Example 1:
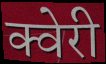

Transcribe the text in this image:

क्वेरी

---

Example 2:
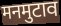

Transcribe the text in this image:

मनमुटाव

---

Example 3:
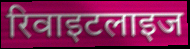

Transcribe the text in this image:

रिवाइटलाइज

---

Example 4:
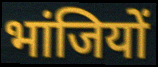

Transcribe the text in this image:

भांजियों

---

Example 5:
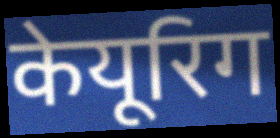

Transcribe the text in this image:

केयूरिग